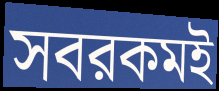
সবরকমই